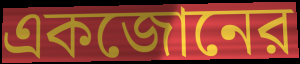
একজোনের